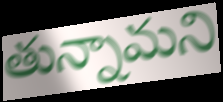
తున్నామని